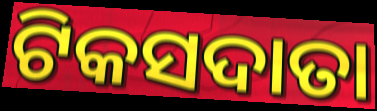
ଟିକସଦାତା